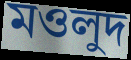
মওলুদ